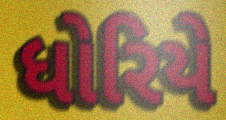
ધોરિયે